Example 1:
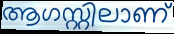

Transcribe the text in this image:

ആഗസ്റ്റിലാണ്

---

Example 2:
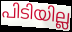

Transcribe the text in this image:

പിടിയില്ല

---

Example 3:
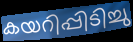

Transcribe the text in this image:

കയറിപ്പിടിച്ചു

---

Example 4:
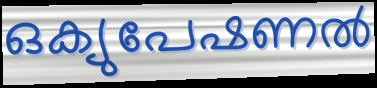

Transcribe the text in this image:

ഒക്യുപേഷണൽ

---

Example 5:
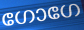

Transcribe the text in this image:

ഗോഗേ